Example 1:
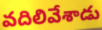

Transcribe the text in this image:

వదిలివేశాడు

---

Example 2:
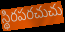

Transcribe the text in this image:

స్థిరపరచుచు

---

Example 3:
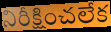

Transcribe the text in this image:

నిరీక్షించలేక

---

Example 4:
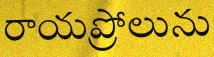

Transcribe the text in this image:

రాయప్రోలును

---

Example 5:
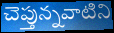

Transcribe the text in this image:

చెప్తున్నవాటిని